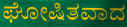
ಘೋಷಿತವಾದ